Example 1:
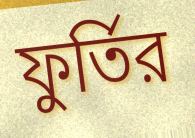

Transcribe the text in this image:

ফুর্তির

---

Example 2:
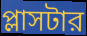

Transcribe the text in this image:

প্লাসটার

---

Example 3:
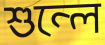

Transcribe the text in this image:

শুন্লে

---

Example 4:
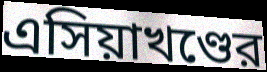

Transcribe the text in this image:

এসিয়াখণ্ডের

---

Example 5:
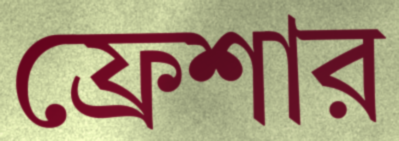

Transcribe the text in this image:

ফ্রেশার